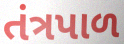
તંત્રપાળ